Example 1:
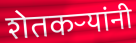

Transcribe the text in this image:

शेतकऱ्यांनी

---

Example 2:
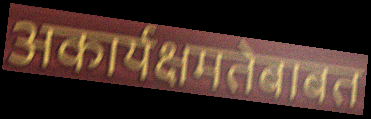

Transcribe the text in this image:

अकार्यक्षमतेबाबत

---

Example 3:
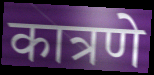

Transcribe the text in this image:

कात्रणे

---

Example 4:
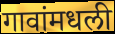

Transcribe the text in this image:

गावांमधली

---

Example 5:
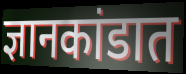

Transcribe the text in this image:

ज्ञानकांडात